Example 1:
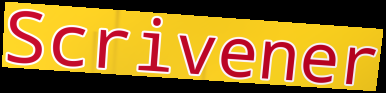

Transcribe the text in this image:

Scrivener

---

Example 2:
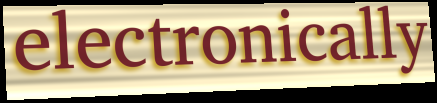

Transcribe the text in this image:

electronically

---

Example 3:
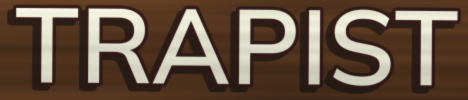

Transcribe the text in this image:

TRAPIST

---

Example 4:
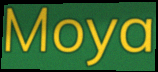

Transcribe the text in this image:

Moya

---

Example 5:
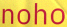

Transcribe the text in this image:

noho